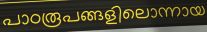
പാഠരൂപങ്ങളിലൊന്നായ